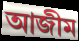
আজীম